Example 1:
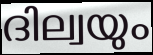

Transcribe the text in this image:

ദില്വയും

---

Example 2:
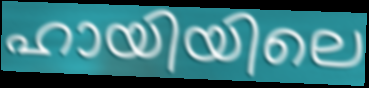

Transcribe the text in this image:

ഹായിയിലെ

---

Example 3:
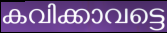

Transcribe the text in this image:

കവിക്കാവട്ടെ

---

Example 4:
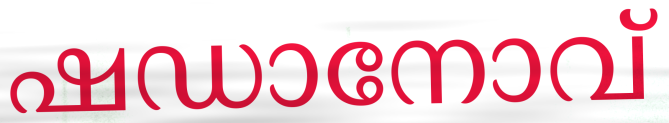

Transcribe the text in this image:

ഷഡാനോവ്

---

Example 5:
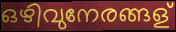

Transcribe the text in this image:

ഒഴിവുനേരങ്ങള്